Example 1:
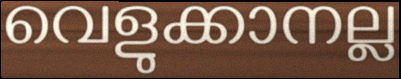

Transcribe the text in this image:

വെളുക്കാനല്ല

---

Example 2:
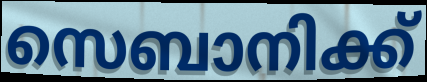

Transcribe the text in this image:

സെബാനിക്ക്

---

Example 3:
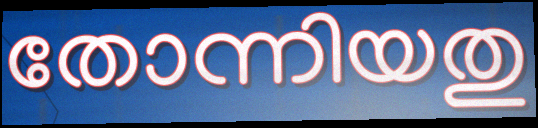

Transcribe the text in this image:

തോന്നിയതു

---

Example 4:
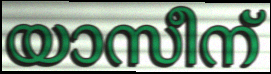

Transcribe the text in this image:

യാസീന്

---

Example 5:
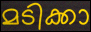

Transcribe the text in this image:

മടിക്കാ